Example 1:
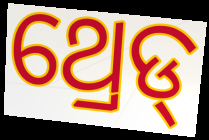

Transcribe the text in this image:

ଥ୍ରେଡ୍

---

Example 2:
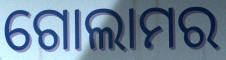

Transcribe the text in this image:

ଗୋଲାମର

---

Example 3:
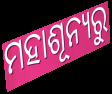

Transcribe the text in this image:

ମହାଶୂନ୍ୟରୁ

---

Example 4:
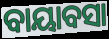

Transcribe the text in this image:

ବାୟାବସା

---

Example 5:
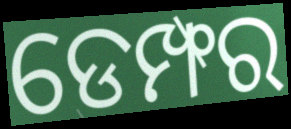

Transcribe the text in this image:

ଡେମ୍ଫର